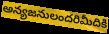
అన్యజనులందరిమీదికి